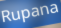
Rupana